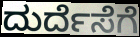
ದುರ್ದೆಸೆಗೆ